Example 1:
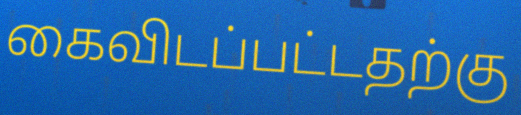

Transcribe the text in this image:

கைவிடப்பட்டதற்கு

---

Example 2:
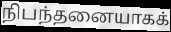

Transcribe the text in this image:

நிபந்தனையாகக்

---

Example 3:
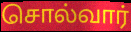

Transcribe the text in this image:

சொல்வார்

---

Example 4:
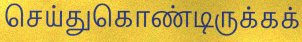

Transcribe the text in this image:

செய்துகொண்டிருக்கக்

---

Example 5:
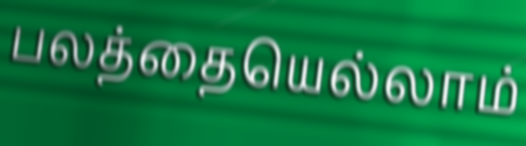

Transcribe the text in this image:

பலத்தையெல்லாம்